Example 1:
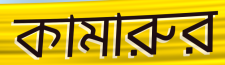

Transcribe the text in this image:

কামারুর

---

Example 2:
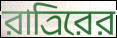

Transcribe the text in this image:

রাত্রিরের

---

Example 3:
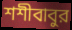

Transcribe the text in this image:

শশীবাবুর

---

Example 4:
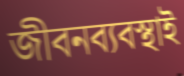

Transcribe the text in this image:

জীবনব্যবস্থাই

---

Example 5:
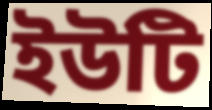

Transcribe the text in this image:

ইউটি